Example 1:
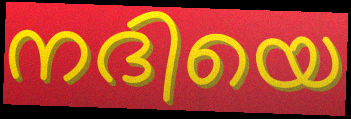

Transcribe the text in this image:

നദിയെ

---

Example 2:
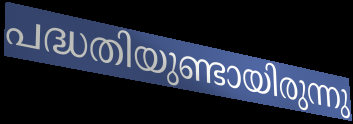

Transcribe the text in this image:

പദ്ധതിയുണ്ടായിരുന്നു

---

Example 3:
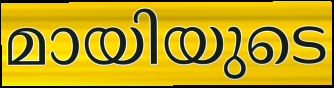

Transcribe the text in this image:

മായിയുടെ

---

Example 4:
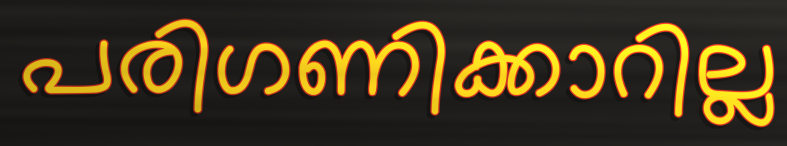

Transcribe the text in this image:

പരിഗണിക്കാറില്ല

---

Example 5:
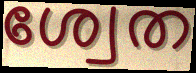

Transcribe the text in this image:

ശ്വേത